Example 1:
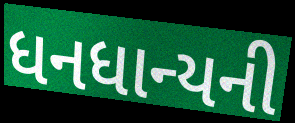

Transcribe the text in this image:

ધનધાન્યની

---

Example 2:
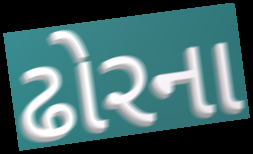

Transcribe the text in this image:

ઢોરના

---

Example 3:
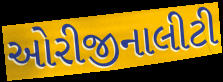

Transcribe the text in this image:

ઓરીજીનાલીટી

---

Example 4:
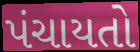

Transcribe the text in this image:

પંચાયતો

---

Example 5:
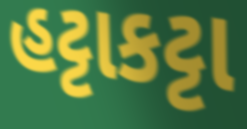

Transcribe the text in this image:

હટ્ટાકટ્ટા